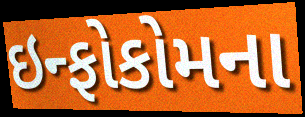
ઇન્ફોકોમના